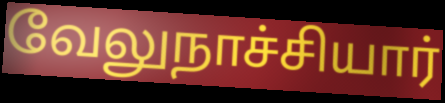
வேலுநாச்சியார்